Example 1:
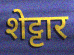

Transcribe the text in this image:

शेट्टार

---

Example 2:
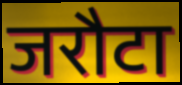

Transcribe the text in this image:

जरौटा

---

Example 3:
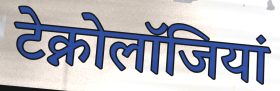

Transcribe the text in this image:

टेक्नोलॉजियां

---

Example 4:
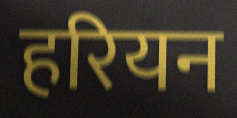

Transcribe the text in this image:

हरियन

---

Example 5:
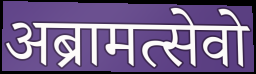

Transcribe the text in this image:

अब्रामत्सेवो